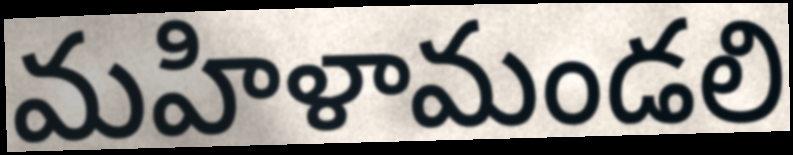
మహిళామండలి